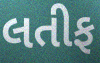
લતીફ